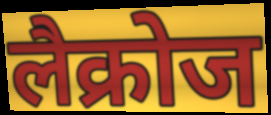
लैक्रोज